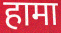
हामा